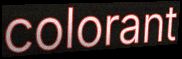
colorant